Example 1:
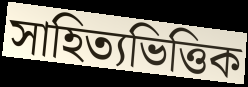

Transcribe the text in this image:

সাহিত্যভিত্তিক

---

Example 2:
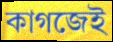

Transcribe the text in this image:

কাগজেই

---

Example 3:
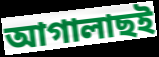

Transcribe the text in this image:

আগালাছই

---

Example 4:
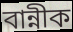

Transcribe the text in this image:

বান্নীক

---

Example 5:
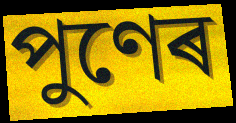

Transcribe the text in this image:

পুণেৰ